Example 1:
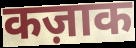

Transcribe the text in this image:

कज़ाक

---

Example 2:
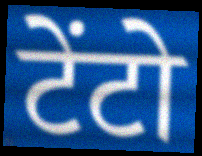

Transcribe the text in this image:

टेंटो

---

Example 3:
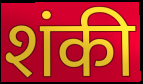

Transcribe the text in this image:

शंकी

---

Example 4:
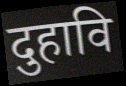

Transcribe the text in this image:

दुहावि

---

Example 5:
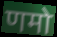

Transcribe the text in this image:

णमो